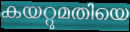
കയറ്റുമതിയെ